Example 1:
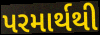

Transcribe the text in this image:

પરમાર્થથી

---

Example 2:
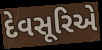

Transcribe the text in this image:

દેવસૂરિએ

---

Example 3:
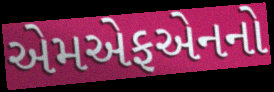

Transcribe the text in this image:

એમએફએનનો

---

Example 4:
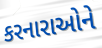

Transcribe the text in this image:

કરનારાઓને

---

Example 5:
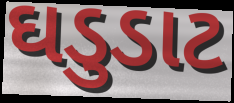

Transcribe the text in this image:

ઘડુડાટ